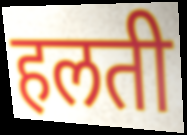
हलती